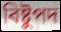
বিষ্টুপদ